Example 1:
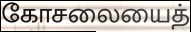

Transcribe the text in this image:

கோசலையைத்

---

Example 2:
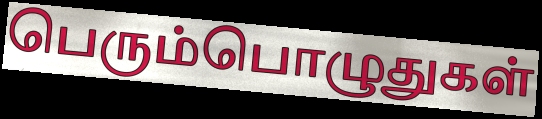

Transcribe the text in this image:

பெரும்பொழுதுகள்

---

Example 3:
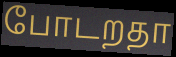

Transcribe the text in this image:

போடறதா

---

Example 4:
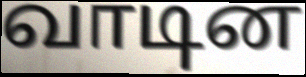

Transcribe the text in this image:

வாடின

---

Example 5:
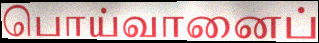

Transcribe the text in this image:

பொய்வானைப்